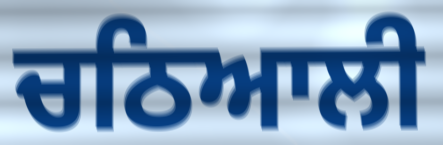
ਚਠਿਆਲੀ